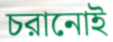
চরানোই